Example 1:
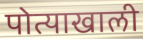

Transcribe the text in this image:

पोत्याखाली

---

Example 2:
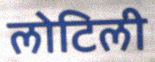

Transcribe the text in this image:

लोटिली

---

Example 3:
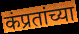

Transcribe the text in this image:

कंप्रतांच्या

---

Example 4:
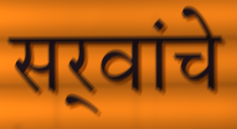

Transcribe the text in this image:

सर्वांचे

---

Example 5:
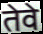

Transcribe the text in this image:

तेवे